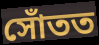
সোঁতত